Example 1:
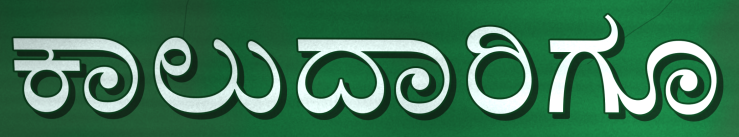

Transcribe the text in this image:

ಕಾಲುದಾರಿಗೂ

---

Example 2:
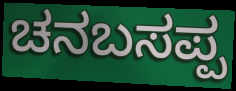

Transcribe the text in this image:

ಚನಬಸಪ್ಪ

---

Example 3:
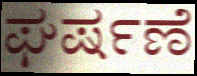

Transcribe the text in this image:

ಘರ್ಷಣೆ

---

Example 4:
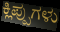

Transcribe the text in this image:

ಕ್ಲಿಪ್ಪುಗಳು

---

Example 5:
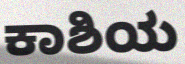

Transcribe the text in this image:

ಕಾಶಿಯ